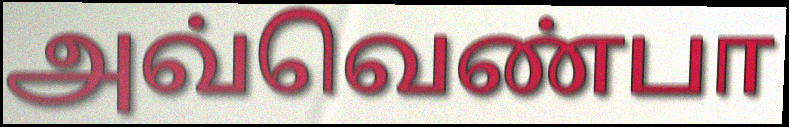
அவ்வெண்பா